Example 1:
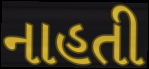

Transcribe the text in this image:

નાહતી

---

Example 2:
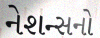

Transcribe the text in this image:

નેશન્સનો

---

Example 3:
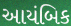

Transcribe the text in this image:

આયંબિક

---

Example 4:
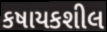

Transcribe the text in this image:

કષાયકશીલ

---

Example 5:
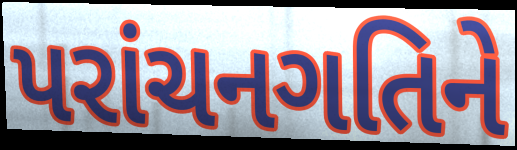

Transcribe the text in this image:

પરાંચનગતિને